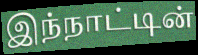
இந்நாட்டின்